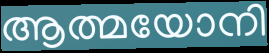
ആത്മയോനി